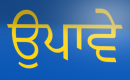
ਉਪਾਵੇ